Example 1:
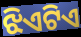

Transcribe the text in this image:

ଝିଏଟିଏ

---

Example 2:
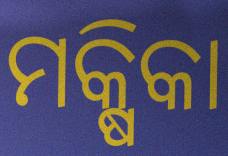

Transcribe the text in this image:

ମକ୍ଷିକା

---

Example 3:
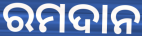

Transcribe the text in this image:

ରମଦାନ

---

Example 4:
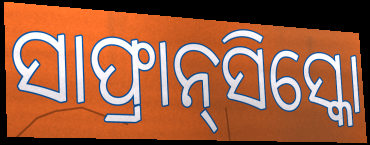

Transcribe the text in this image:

ସାଫ୍ରାନ୍‌ସିସ୍କୋ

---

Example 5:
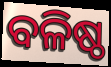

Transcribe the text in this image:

ବଳିଷ୍ଠ